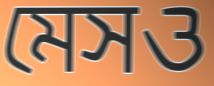
মেসও